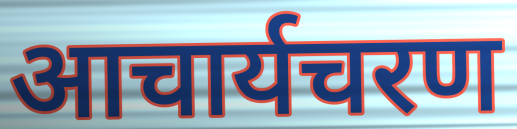
आचार्यचरण